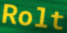
Rolt